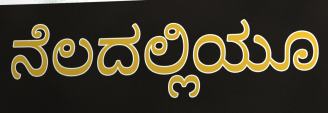
ನೆಲದಲ್ಲಿಯೂ